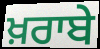
ਖ਼ਰਾਬੇ